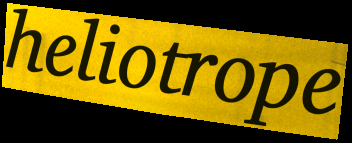
heliotrope